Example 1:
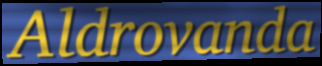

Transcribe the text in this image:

Aldrovanda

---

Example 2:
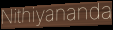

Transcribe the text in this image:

Nithiyananda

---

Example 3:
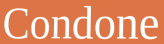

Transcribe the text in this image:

Condone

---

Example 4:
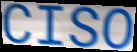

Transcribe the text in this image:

CISO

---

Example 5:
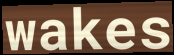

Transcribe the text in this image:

wakes